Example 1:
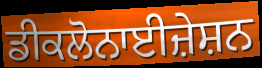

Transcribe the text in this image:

ਡੀਕਲੋਨਾਈਜ਼ੇਸ਼ਨ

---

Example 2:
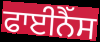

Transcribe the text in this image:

ਫਾਈਨੈੱਸ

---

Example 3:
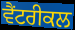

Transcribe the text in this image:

ਵੈਂਟਰੀਕਲ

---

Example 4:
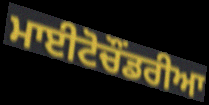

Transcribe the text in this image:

ਮਾਈਟੋਚੌਂਡਰੀਆ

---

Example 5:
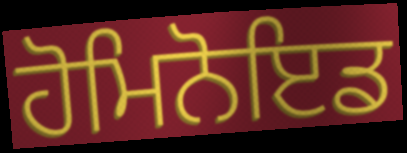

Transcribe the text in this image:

ਹੋਮਿਨੋਇਡ